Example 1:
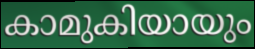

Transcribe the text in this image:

കാമുകിയായും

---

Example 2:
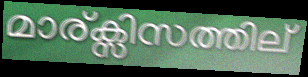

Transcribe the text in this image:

മാര്ക്സിസത്തില്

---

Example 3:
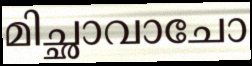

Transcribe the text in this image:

മിച്ഛാവാചോ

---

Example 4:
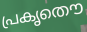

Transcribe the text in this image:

പ്രകൃതൌ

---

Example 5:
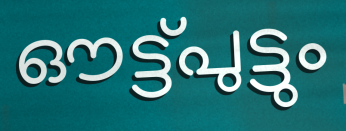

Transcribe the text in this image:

ഔട്ട്പുട്ടും